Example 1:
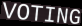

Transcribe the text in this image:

VOTING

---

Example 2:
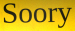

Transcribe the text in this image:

Soory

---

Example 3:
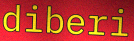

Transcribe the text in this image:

diberi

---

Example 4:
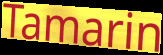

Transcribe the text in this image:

Tamarin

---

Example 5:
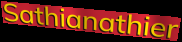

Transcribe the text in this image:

Sathianathier